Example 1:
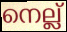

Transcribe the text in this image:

നെല്ല്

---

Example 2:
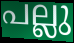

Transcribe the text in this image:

പല്ലു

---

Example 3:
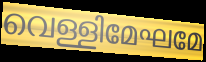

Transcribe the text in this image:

വെള്ളിമേഘമേ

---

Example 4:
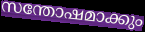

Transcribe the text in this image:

സന്തോഷമാക്കും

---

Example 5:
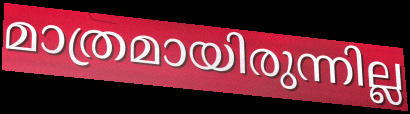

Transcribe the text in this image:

മാത്രമായിരുന്നില്ല